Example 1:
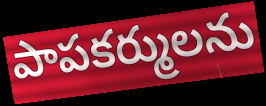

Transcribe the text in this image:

పాపకర్ములను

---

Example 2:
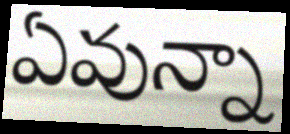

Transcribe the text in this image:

ఏవున్నా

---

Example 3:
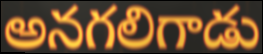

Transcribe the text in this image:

అనగలిగాడు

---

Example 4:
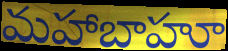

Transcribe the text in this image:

మహాబాహూ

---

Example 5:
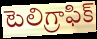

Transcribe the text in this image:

టెలిగ్రాఫిక్